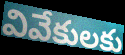
వివేకులకు